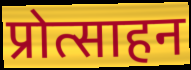
प्रोत्साहन